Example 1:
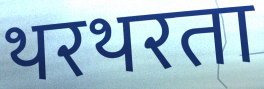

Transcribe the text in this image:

थरथरता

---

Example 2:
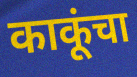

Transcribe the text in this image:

काकूंचा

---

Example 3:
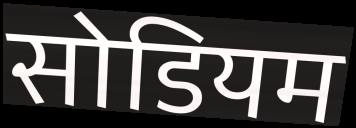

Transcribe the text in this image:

सोडियम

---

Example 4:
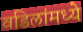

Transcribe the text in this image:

वडिलांमध्ये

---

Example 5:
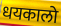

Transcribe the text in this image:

धयकालो